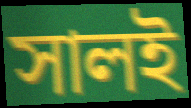
সালই